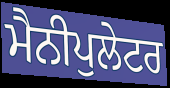
ਮੈਨੀਪੁਲੇਟਰ